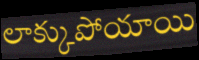
లాక్కుపోయాయి